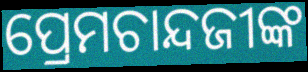
ପ୍ରେମଚାନ୍ଦଜୀଙ୍କ